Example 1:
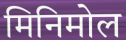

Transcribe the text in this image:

मिनिमोल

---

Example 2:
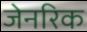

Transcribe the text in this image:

जेनरिक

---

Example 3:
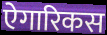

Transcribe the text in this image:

ऐगारिकस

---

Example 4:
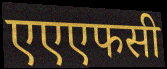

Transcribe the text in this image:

एएएफसी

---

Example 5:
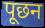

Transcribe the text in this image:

पूछन